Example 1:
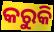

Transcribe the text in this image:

କରୁକି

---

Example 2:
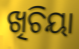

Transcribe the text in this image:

ଖିଚିୟା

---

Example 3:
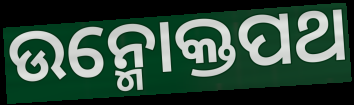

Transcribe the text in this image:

ଉନ୍ମୋକ୍ତପଥ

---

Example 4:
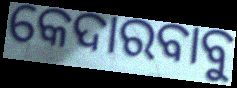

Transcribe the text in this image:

କେଦାରବାବୁ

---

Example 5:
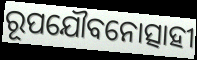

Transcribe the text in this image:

ରୂପଯୌବନୋତ୍ସାହୀ